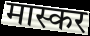
मास्कर